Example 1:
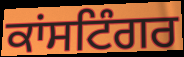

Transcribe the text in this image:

ਕਾਂਸਟਿੰਗਰ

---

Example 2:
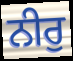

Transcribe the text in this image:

ਨੀਰੁ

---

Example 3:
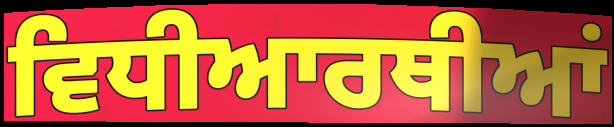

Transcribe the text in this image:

ਵਿਧੀਆਰਥੀਆਂ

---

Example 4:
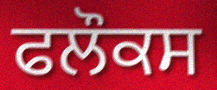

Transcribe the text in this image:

ਫਲੌਕਸ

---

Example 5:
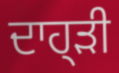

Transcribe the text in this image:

ਦਾਹ੍ੜੀ